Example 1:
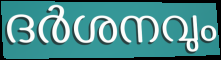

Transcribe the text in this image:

ദർശനവും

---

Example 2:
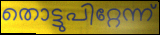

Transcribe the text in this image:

തൊട്ടുപിറ്റേന്ന്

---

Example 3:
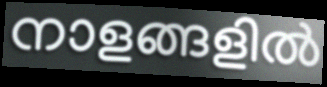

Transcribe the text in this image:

നാളങ്ങളിൽ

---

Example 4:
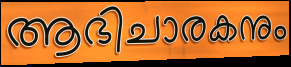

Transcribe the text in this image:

ആഭിചാരകനും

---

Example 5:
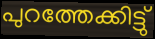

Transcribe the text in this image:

പുറത്തേക്കിട്ടു്